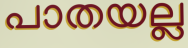
പാതയല്ല